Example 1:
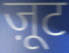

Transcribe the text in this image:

ज़ूट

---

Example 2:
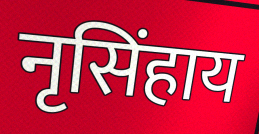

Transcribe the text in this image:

नृसिंहाय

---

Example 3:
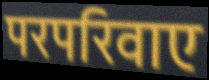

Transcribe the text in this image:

परपरिवाए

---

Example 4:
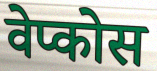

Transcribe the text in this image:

वेप्कोस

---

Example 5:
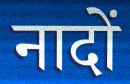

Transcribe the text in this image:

नादों